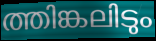
ത്തിങ്കലിടും